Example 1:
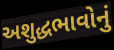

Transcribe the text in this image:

અશુદ્ધભાવોનું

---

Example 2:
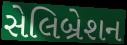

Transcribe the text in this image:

સેલિબ્રેશન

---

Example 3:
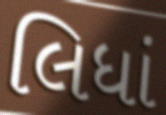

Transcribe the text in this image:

લિધાં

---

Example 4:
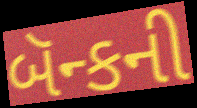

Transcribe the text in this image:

બૅન્કની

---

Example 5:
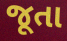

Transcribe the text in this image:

જૂતા